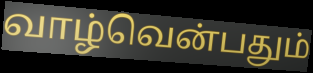
வாழ்வென்பதும்